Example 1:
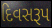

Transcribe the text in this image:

દિવસરૂપ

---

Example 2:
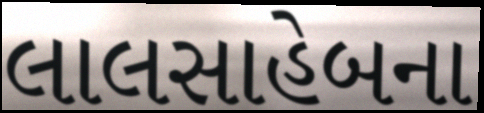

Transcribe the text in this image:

લાલસાહેબના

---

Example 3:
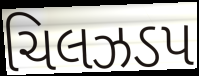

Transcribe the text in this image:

ચિલઝડપ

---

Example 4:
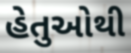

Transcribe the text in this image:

હેતુઓથી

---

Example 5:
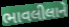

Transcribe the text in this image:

ભાવલીલાને